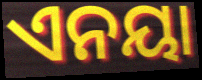
ଏନୟା